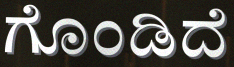
ಗೊಂಡಿದೆ